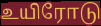
உயிரோடு